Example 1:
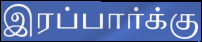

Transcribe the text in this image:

இரப்பார்க்கு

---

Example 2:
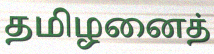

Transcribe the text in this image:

தமிழனைத்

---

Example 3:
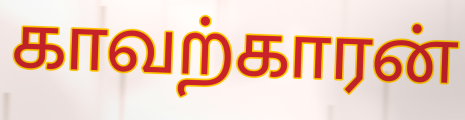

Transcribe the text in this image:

காவற்காரன்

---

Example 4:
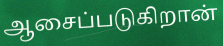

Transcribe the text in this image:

ஆசைப்படுகிறான்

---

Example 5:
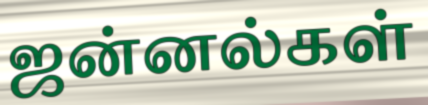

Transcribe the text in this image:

ஜன்னல்கள்